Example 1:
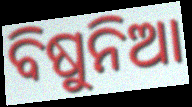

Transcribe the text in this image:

ବିଷୁନିଆ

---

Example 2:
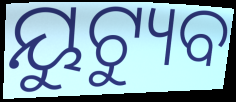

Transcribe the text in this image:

ୟୁଟ୍ୟୁବ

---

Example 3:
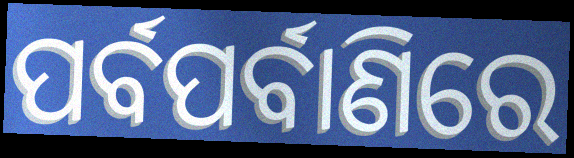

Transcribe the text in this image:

ପର୍ବପର୍ବାଣିରେ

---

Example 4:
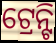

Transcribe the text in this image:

ଟ୍ରେନ୍ଟି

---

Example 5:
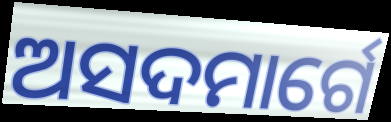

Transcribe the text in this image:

ଅସଦମାର୍ଗେ